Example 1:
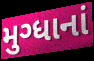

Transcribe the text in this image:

મુગ્ધાનાં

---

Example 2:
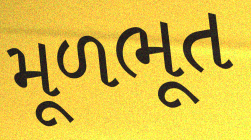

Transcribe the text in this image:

મૂળભૂત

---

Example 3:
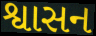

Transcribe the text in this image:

શ્વાસન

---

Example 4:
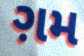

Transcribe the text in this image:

ગ઼મ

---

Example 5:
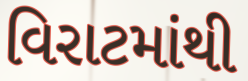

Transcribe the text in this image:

વિરાટમાંથી